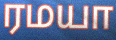
ரமயா